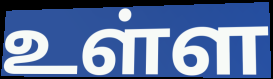
உள்ள